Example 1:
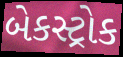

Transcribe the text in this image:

બેકસ્ટ્રોક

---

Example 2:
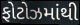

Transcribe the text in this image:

ફોટોઝમાંથી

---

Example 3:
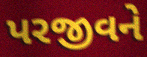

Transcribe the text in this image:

પરજીવને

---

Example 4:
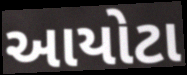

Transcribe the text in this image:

આયોટા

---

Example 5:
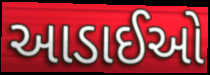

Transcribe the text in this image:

આડાઈઓ